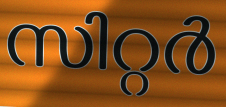
സിറ്റർ